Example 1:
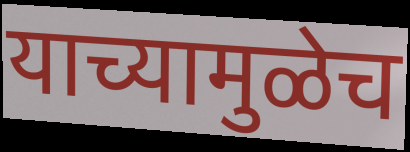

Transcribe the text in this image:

याच्यामुळेच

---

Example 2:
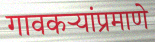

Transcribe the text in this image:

गावकऱ्यांप्रमाणे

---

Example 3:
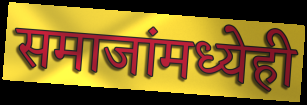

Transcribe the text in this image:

समाजांमध्येही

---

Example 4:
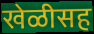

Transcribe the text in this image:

खेळीसह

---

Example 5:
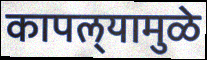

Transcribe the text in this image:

कापल्यामुळे